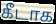
கீடாக